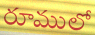
రూములో